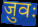
जुवः